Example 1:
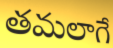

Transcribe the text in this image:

తమలాగే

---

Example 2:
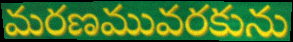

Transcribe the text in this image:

మరణమువరకును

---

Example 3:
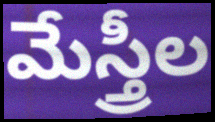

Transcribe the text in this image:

మేస్త్రీల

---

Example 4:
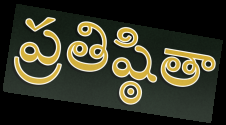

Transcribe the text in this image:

ప్రతిష్ఠితా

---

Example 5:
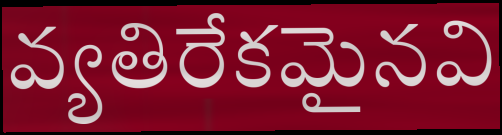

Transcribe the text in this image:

వ్యతిరేకమైనవి